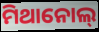
ମିଥାନୋଲ୍